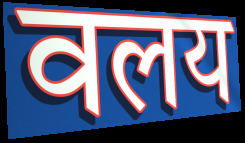
वलय